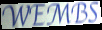
WEMBS